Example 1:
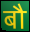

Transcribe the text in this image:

बौ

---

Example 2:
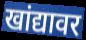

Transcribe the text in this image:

खांद्यावर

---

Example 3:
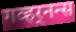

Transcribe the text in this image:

गव्हर्नन्स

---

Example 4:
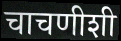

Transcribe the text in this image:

चाचणीशी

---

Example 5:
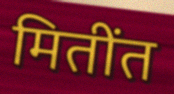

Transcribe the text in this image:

मितींत